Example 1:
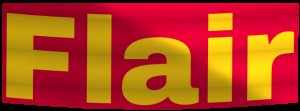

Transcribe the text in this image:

Flair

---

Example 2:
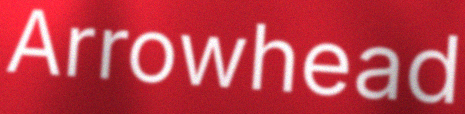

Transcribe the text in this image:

Arrowhead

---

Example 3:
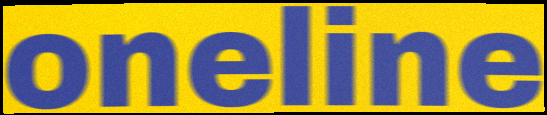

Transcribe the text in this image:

oneline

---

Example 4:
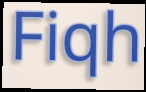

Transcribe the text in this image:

Fiqh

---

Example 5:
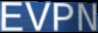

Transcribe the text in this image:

EVPN